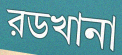
রডখানা